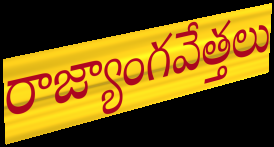
రాజ్యాంగవేత్తలు